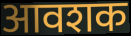
आवशक